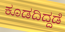
ಕೂಡದಿದ್ದಡೆ